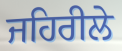
ਜਹਿਰੀਲੇ